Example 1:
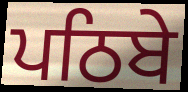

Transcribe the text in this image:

ਪਠਿਬੇ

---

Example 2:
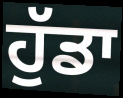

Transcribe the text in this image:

ਹੁੱਡਾ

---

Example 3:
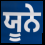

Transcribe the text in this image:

ਯੂਨੇ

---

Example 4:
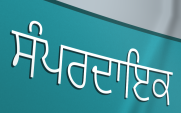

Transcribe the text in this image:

ਸੰਪਰਦਾਇਕ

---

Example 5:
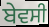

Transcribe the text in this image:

ਬੇਵਸੀ